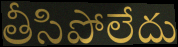
తీసిపోలేదు